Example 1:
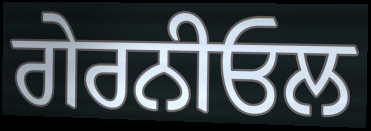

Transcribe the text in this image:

ਗੇਰਨੀਓਲ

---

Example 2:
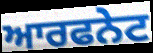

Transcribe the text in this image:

ਆਰਫਨੇਟ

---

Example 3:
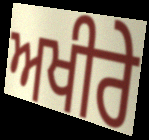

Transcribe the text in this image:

ਅਖੀਰੇ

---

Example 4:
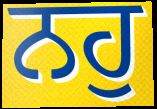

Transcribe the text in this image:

ਨਹੁ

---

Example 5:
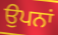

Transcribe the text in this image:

ਉਪਨਾਂ